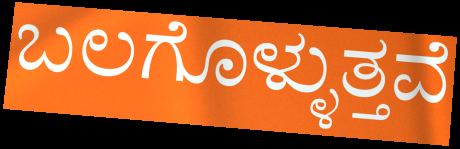
ಬಲಗೊಳ್ಳುತ್ತವೆ